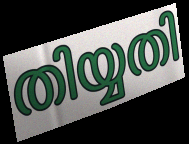
തിയ്യതി